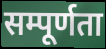
सम्पूर्णता